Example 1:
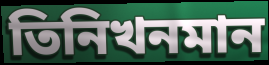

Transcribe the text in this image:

তিনিখনমান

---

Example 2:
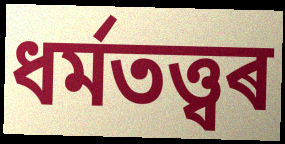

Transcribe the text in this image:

ধৰ্মতত্ত্বৰ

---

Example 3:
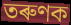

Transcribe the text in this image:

তৰুণক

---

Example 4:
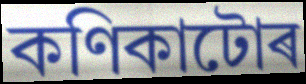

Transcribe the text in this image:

কণিকাটোৰ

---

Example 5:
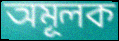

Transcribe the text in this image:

অমূলক